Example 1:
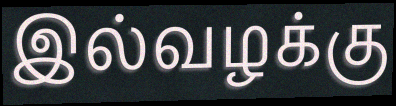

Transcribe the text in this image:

இல்வழக்கு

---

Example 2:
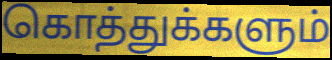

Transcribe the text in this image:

கொத்துக்களும்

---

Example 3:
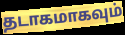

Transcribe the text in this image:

தடாகமாகவும்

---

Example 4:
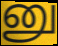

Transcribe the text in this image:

னு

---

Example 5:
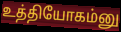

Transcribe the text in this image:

உத்தியோகம்னு